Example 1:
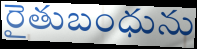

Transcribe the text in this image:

రైతుబంధును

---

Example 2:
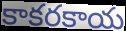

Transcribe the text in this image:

కాకరకాయ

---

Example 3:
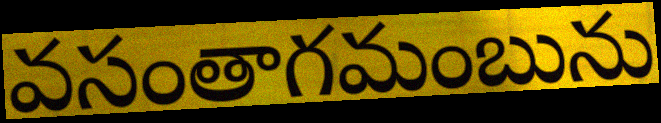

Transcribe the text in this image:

వసంతాగమంబును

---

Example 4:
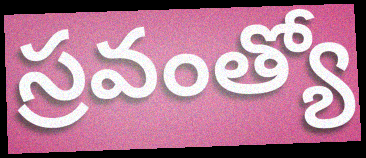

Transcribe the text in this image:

స్రవంత్యో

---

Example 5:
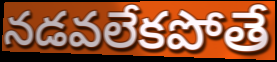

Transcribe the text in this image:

నడవలేకపోతే